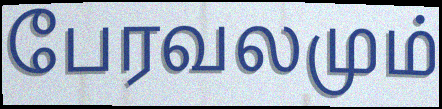
பேரவலமும்